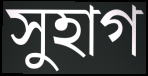
সুহাগ